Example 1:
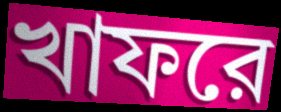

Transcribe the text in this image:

খাফরে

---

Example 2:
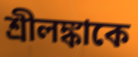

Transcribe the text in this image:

শ্রীলঙ্কাকে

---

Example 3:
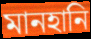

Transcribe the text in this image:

মানহানি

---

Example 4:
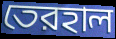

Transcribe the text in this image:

তেরহাল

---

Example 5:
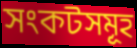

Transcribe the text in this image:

সংকটসমূহ